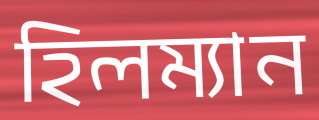
হিলম্যান